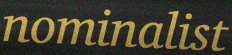
nominalist